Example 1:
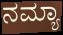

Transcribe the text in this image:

ನಮ್ಯಾ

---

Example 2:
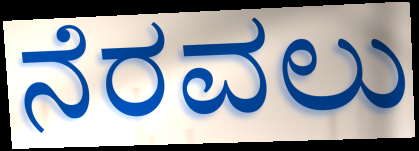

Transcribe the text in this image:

ನೆರವಲು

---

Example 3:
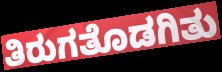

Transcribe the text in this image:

ತಿರುಗತೊಡಗಿತು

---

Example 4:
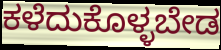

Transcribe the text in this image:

ಕಳೆದುಕೊಳ್ಳಬೇಡ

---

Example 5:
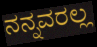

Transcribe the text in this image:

ನನ್ನವರಲ್ಲ